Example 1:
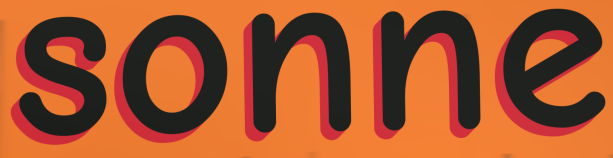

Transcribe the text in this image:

sonne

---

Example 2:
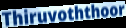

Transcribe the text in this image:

Thiruvoththoor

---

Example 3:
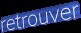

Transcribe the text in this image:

retrouver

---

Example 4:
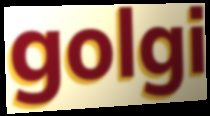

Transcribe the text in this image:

golgi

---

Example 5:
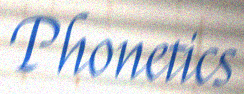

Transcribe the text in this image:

Phonetics